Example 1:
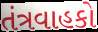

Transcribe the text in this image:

તંત્રવાહકો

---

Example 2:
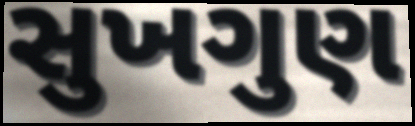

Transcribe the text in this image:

સુખગુણ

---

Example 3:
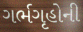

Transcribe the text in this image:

ગર્ભગૃહોની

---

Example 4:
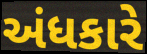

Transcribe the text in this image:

અંધકારે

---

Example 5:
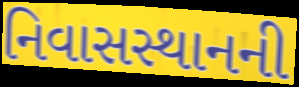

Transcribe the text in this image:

નિવાસસ્થાનની